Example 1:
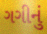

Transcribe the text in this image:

ગગીનું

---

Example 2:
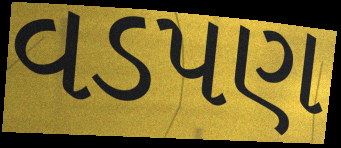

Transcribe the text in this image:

વડપણ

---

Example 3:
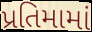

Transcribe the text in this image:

પ્રતિમામાં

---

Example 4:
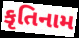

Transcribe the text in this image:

કૃતિનામ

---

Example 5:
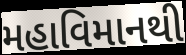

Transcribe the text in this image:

મહાવિમાનથી